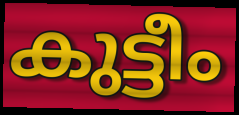
കുട്ടീം